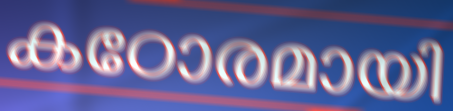
കഠോരമായി